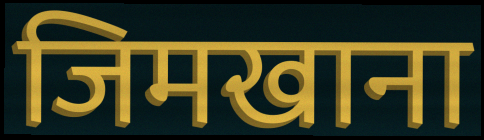
जिमखाना